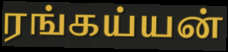
ரங்கய்யன்